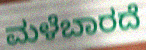
ಮಳೆಬಾರದೆ